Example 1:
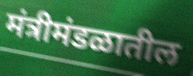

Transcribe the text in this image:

मंत्रीमंडळातील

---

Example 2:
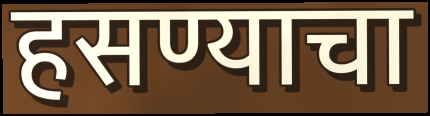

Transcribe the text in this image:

हसण्याचा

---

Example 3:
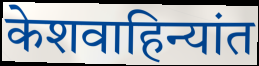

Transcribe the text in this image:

केशवाहिन्यांत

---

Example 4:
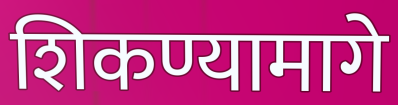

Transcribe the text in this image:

शिकण्यामागे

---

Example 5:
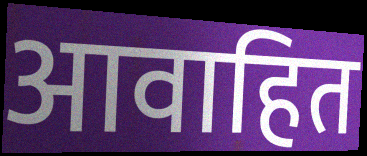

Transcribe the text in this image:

आवाहित